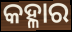
କହ୍ଳାର